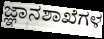
ಜ್ಞಾನಶಾಖೆಗಳ